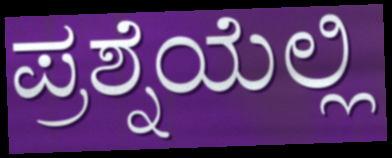
ಪ್ರಶ್ನೆಯೆಲ್ಲಿ